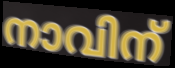
നാവിന്